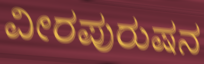
ವೀರಪುರುಷನ